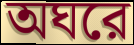
অঘরে